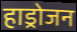
हाड्रोजन